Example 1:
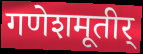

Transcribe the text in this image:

गणेशमूतीर्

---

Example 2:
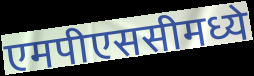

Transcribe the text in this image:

एमपीएससीमध्ये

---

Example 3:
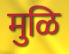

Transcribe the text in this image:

मुळि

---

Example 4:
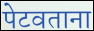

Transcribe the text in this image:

पेटवताना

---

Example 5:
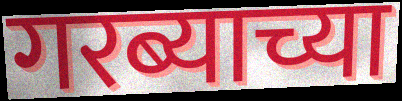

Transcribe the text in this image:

गरब्याच्या